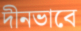
দীনভাবে